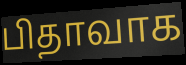
பிதாவாக